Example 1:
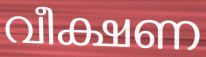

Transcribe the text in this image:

വീക്ഷണ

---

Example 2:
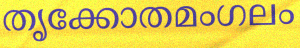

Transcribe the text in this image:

തൃക്കോതമംഗലം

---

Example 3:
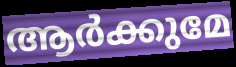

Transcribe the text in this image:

ആർക്കുമേ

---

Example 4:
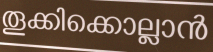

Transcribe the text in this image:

തൂക്കിക്കൊല്ലാൻ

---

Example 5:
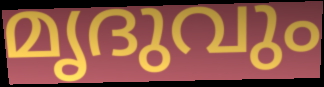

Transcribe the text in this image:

മൃദുവും